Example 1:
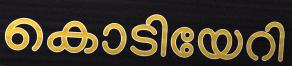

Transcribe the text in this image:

കൊടിയേറി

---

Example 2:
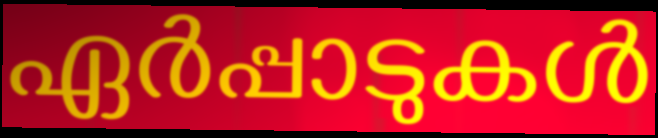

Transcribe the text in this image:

ഏർപ്പാടുകൾ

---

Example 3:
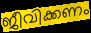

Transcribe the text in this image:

ജീവിക്കണം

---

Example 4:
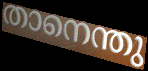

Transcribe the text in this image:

താനെന്തു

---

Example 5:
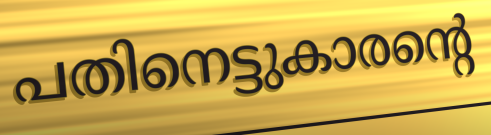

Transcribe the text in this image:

പതിനെട്ടുകാരന്റെ